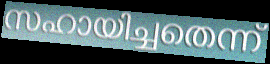
സഹായിച്ചതെന്ന്